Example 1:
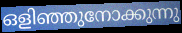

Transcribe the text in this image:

ഒളിഞ്ഞുനോക്കുന്നു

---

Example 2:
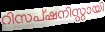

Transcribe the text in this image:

റിസപ്ഷനിസ്റ്റായി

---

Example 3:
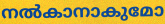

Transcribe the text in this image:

നൽകാനാകുമോ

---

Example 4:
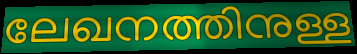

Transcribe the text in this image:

ലേഖനത്തിനുള്ള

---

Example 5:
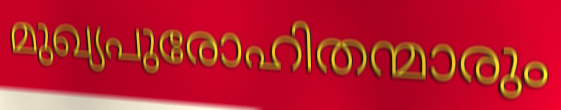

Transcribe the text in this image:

മുഖ്യപുരോഹിതന്മാരും